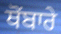
ਥੋਂਬਾਰੇ